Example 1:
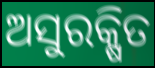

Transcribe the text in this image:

ଅସୁରକ୍ଷିତ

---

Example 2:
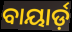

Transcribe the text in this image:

ବାୟାର୍ଡ଼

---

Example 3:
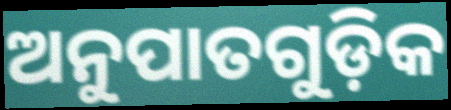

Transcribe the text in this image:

ଅନୁପାତଗୁଡ଼ିକ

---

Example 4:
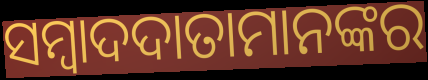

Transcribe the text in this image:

ସମ୍ବାଦଦାତାମାନଙ୍କର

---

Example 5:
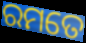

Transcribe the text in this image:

ରମତେ